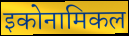
इकोनामिकल